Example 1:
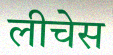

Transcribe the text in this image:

लीचेस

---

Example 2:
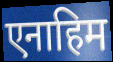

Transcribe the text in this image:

एनाहिम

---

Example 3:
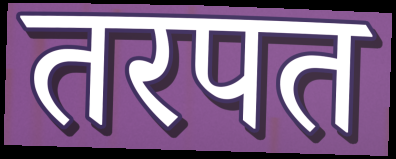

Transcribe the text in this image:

तरपत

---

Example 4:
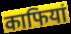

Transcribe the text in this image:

काफियां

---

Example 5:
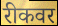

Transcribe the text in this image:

रीकवर